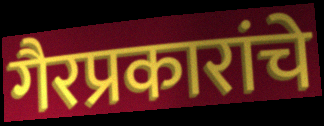
गैरप्रकारांचे